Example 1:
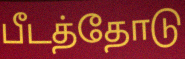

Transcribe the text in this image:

பீடத்தோடு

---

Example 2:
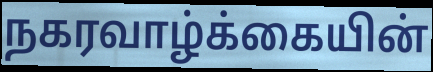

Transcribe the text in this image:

நகரவாழ்க்கையின்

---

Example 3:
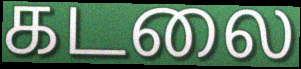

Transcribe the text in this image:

கடலை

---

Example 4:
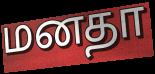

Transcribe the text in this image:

மனதா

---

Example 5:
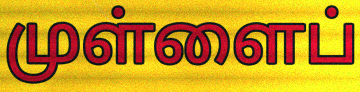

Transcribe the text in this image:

முள்ளைப்